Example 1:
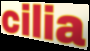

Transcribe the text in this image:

cilia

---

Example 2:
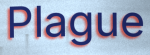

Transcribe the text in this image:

Plague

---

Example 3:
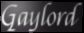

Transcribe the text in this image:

Gaylord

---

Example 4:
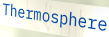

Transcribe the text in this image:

Thermosphere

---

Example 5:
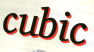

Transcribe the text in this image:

cubic